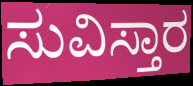
ಸುವಿಸ್ತಾರ